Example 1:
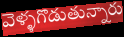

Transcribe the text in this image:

వెళ్ళగొడుతున్నారు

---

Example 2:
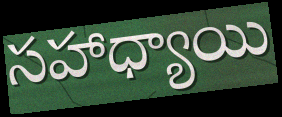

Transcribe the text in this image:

సహాధ్యాయి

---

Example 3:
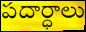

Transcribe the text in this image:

పదార్ధాలు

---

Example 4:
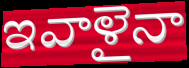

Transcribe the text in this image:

ఇవాళైనా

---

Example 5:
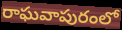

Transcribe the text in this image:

రాఘవాపురంలో